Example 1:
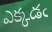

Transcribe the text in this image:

ఎక్కడఁ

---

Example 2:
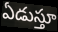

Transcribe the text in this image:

ఏడుస్తూ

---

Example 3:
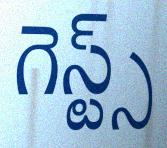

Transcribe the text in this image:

గెస్ట్స్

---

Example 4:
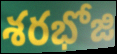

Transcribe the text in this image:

శరభోజి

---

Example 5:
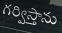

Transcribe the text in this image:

గర్విస్తాను